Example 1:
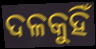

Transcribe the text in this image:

ଦଳକୁହିଁ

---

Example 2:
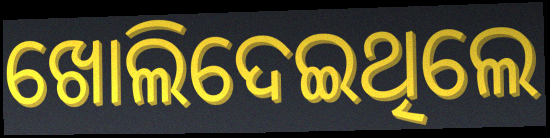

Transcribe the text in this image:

ଖୋଲିଦେଇଥିଲେ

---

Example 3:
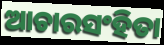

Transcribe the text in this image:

ଆଚାରସଂହିତା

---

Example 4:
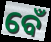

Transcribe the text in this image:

ବେଁ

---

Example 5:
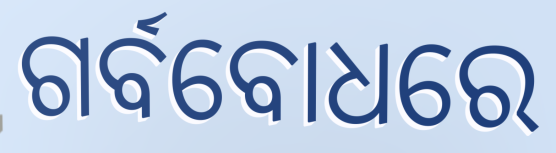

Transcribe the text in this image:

ଗର୍ବବୋଧରେ